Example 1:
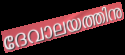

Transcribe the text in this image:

ദേവാലയത്തിനു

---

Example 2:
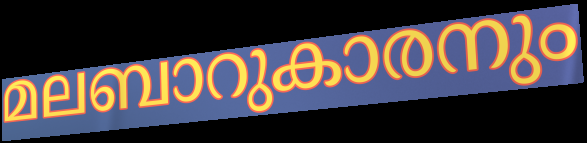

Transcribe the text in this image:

മലബാറുകാരനും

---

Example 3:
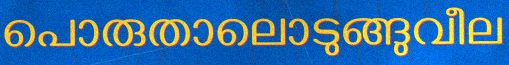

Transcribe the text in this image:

പൊരുതാലൊടുങ്ങുവീല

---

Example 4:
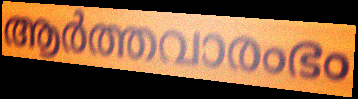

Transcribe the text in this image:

ആർത്തവാരംഭം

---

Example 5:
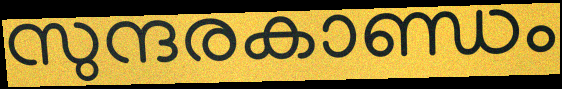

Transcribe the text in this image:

സുന്ദരകാണ്ഡം